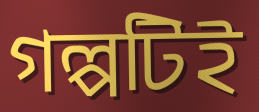
গল্পটিই